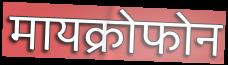
मायक्रोफोन